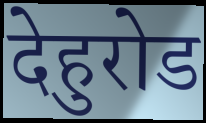
देहुरोड